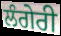
ਲੰਗੇਰੀ